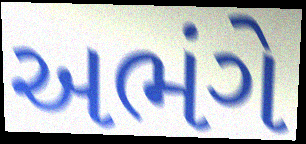
અભંગે